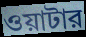
ওয়াটার